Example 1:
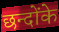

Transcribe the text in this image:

छन्दोंके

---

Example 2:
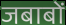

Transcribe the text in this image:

जबाबों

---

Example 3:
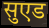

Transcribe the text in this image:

सुएड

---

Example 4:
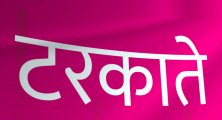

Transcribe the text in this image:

टरकाते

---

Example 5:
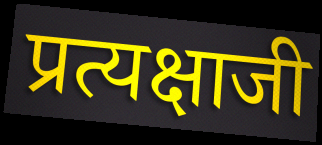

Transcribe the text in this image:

प्रत्यक्षाजी